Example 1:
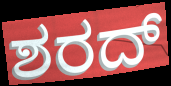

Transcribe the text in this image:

ಶರದ್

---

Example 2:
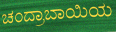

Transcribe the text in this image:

ಚಂದ್ರಾಬಾಯಿಯ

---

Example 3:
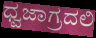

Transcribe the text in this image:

ಧ್ವಜಾಗ್ರದಲಿ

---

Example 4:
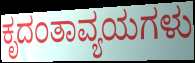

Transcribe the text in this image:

ಕೃದಂತಾವ್ಯಯಗಳು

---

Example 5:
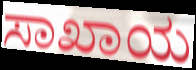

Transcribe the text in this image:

ಸಾಖಾಯ